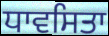
ਧਾਵਸਿਤਾ